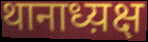
थानाध्य़क्ष